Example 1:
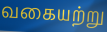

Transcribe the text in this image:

வகையற்று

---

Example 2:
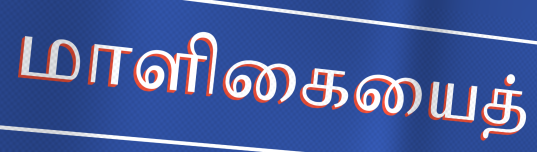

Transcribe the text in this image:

மாளிகையைத்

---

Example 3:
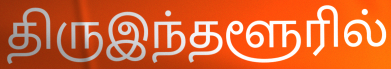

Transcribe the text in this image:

திருஇந்தளூரில்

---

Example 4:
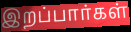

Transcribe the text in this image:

இறப்பார்கள்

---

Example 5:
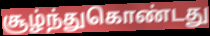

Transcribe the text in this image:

சூழ்ந்துகொண்டது